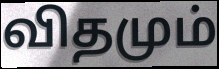
விதமும்